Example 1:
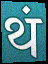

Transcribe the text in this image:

थं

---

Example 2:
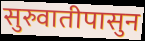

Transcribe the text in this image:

सुरुवातीपासुन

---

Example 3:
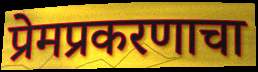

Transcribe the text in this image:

प्रेमप्रकरणाचा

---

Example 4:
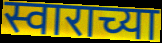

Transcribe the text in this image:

स्वाराच्या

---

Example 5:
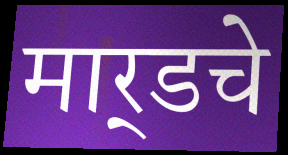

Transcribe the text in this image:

मार्डचे